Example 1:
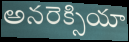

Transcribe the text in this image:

అనరెక్సియా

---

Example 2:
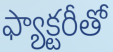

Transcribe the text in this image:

ఫ్యాక్టరీతో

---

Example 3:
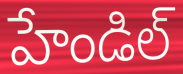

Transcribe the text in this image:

హేండిల్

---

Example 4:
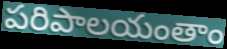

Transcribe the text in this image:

పరిపాలయంతాం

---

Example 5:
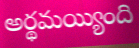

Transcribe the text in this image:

అర్థమయ్యింది